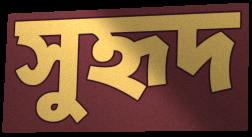
সুহৃদ